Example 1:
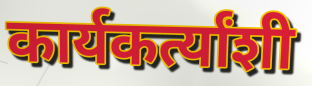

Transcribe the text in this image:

कार्यकर्त्यांशी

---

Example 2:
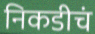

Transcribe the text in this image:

निकडीचं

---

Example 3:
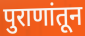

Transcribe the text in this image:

पुराणांतून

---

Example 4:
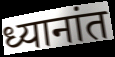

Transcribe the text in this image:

ध्यानांत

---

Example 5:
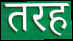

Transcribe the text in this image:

तरह